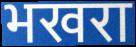
भखरा